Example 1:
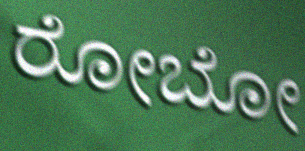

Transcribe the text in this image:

ರೋಬೋ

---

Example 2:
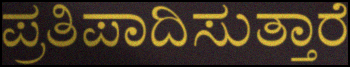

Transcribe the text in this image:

ಪ್ರತಿಪಾದಿಸುತ್ತಾರೆ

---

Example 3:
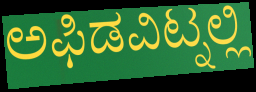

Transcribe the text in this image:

ಅಫಿಡವಿಟ್ನಲ್ಲಿ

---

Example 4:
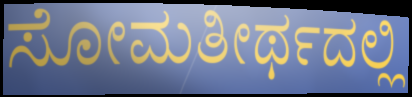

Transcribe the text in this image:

ಸೋಮತೀರ್ಥದಲ್ಲಿ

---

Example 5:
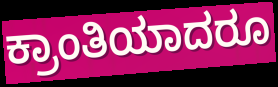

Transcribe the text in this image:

ಕ್ರಾಂತಿಯಾದರೂ